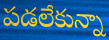
పడలేకున్నా